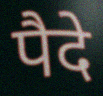
पैदे